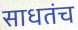
साधतंच